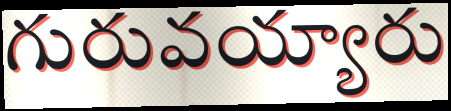
గురువయ్యారు